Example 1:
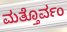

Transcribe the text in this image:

ಮತ್ತೊರ್ವಂ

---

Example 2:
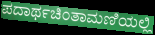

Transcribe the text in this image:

ಪದಾರ್ಥಚಿಂತಾಮಣಿಯಲ್ಲಿ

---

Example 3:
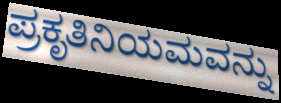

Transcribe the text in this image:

ಪ್ರಕೃತಿನಿಯಮವನ್ನು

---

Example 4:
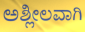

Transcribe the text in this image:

ಅಶ್ಲೀಲವಾಗಿ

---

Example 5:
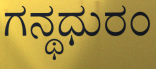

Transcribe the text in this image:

ಗನ್ಥಧುರಂ